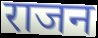
राजन